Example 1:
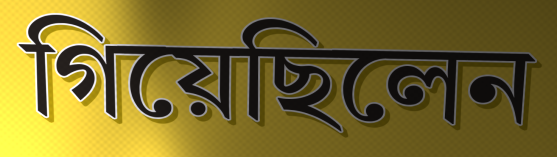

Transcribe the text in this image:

গিয়েছিলেন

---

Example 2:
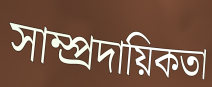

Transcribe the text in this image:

সাম্প্রদায়িকতা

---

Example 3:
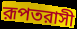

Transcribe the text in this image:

রূপতরাসী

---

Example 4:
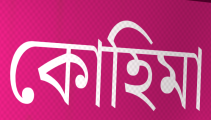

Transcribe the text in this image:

কোহিমা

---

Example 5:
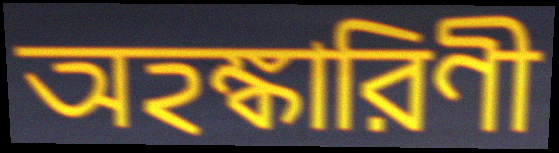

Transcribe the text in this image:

অহঙ্কারিণী